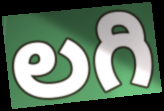
లగి